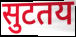
सुटतय